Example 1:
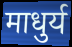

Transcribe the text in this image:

माधुर्य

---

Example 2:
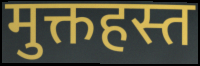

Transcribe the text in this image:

मुक्तहस्त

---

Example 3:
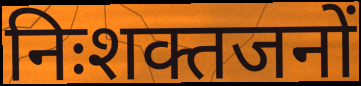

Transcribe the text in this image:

निःशक्तजनों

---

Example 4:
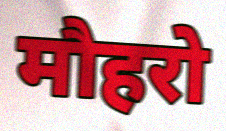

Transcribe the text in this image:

मौहरो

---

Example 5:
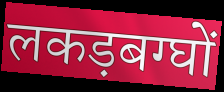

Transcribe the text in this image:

लकड़बग्घों